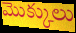
మొక్కులు